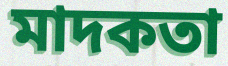
মাদকতা